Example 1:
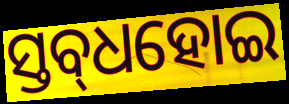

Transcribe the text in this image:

ସ୍ତବ୍‌ଧହୋଇ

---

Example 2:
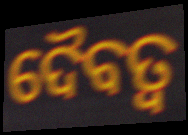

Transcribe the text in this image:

ଦୈବତ୍ଵ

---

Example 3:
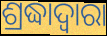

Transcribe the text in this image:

ଶ୍ରଦ୍ଧାଦ୍ୱାରା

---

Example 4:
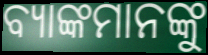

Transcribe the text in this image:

ବ୍ୟାଙ୍କମାନଙ୍କୁ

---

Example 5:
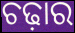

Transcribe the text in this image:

ଚଢ଼ାର